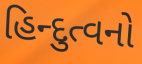
હિન્દુત્વનો